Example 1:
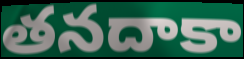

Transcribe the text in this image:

తనదాకా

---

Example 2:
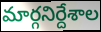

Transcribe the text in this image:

మార్గనిర్దేశాల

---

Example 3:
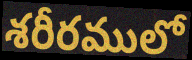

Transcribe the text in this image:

శరీరములో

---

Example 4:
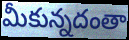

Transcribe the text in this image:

మీకున్నదంతా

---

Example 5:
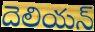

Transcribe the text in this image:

దెలియన్